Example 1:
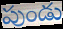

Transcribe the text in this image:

పుండు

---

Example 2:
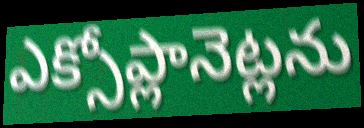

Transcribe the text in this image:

ఎక్సోప్లానెట్లను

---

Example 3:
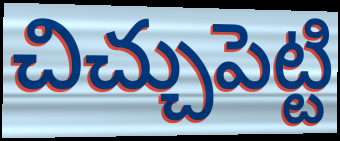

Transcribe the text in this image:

చిచ్చుపెట్టి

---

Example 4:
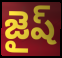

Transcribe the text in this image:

జైష్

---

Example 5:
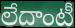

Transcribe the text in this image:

లేదాంటీ